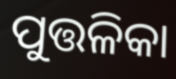
ପୁତ୍ତଳିକା